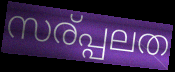
സര്പ്പലത